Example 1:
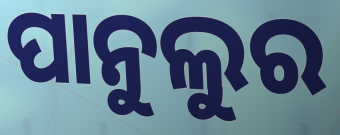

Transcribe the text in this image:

ପାନୁଲୁର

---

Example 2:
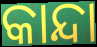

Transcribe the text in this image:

କାନ୍ଦା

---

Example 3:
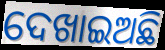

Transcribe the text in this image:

ଦେଖାଇଅଛି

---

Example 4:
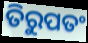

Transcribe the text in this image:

ତିରୁପତଂ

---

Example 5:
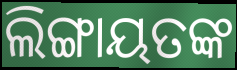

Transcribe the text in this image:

ଲିଙ୍ଗାୟତଙ୍କ